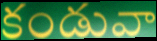
కండువా